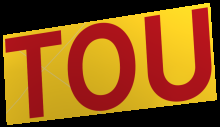
TOU